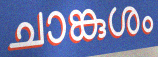
ചാങ്കുശം